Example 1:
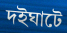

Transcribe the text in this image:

দইঘাটে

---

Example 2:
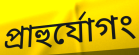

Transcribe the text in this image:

প্রাহুর্যোগং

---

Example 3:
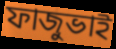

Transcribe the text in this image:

ফাজুভাই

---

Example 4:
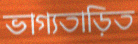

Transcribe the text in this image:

ভাগ্যতাড়িত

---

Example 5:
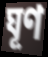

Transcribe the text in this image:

ঘূণ